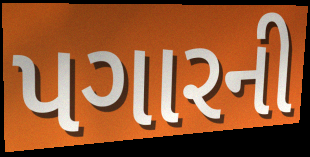
પગારની